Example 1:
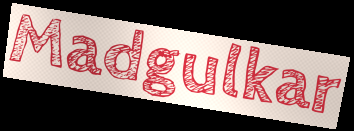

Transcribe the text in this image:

Madgulkar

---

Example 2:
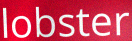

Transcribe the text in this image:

lobster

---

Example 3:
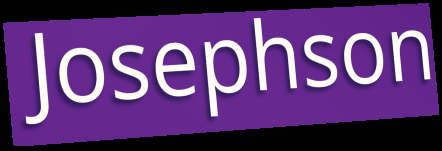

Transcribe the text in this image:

Josephson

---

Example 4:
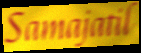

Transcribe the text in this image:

Samajatil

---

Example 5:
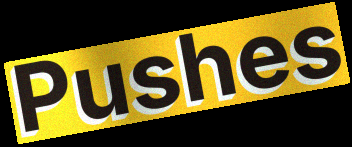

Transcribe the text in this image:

Pushes